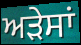
ਅੜੇਸਾਂ